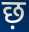
छ़